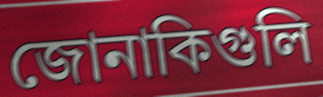
জোনাকিগুলি